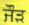
ਜੌੜ